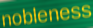
nobleness